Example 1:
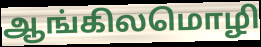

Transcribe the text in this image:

ஆங்கிலமொழி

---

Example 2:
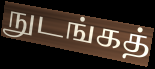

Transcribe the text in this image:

நுடங்கத்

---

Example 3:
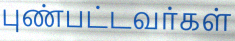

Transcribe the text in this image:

புண்பட்டவர்கள்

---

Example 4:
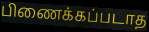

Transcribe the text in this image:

பிணைக்கப்படாத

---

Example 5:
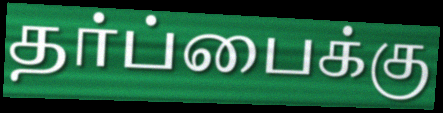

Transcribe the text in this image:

தர்ப்பைக்கு